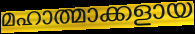
മഹാത്മാക്കളായ